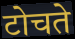
टोचते